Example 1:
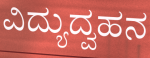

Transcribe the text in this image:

ವಿದ್ಯುದ್ವಹನ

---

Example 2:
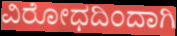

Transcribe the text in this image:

ವಿರೋಧದಿಂದಾಗಿ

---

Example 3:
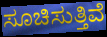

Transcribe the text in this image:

ಸೂಚಿಸುತ್ತಿವೆ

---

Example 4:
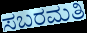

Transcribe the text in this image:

ಸಬರಮತಿ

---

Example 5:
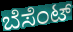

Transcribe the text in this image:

ಬೆಸೆಂಟ್